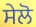
ਸੇਲੋ